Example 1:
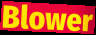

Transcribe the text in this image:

Blower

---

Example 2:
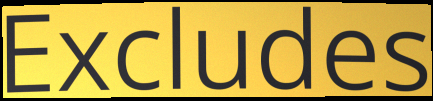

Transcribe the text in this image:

Excludes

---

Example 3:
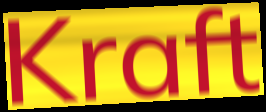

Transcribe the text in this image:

Kraft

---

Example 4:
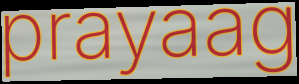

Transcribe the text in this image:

prayaag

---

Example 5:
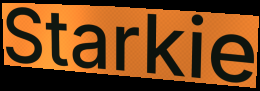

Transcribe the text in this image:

Starkie